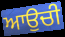
ਆਉਚੀ